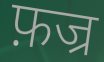
फ़ज्र